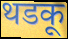
थडकू